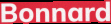
Bonnard